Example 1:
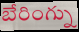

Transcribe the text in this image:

బేరింగ్ను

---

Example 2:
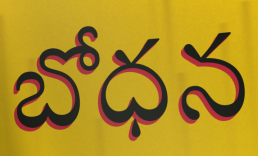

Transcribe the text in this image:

బోధన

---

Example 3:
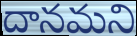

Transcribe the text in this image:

దానమని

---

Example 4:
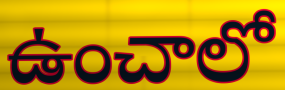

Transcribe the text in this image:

ఉంచాలో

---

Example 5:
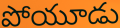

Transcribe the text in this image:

పోయూడు